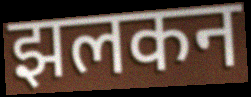
झलकन